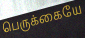
பெருக்கையே